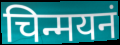
चिन्मयनं